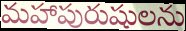
మహాపురుషులను